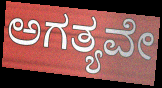
ಅಗತ್ಯವೇ